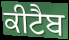
ਕੀਟੈਬ